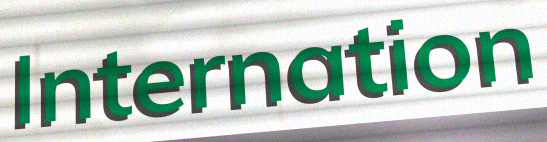
Internation